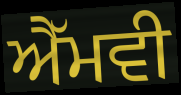
ਐੱਮਵੀ